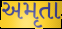
અમૃતા